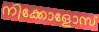
നിക്കോളോസ്